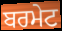
ਬਰਮੇਟ